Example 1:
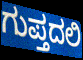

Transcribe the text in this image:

ಗುಪ್ತದಲಿ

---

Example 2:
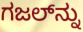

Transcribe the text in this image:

ಗಜಲ್‍ನ್ನು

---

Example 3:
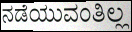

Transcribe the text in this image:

ನಡೆಯುವಂತಿಲ್ಲ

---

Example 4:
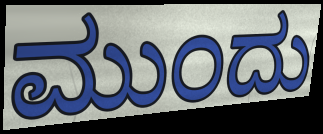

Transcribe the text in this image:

ಮುಂದು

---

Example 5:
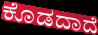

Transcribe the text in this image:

ಕೊಡದಾದೆ